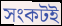
সংকটই